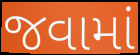
જવામાં